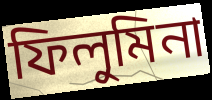
ফিলুমিনা